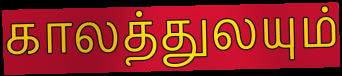
காலத்துலயும்